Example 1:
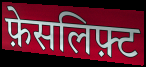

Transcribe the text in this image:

फ़ेसलिफ़्ट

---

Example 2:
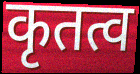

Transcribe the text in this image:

कृतत्व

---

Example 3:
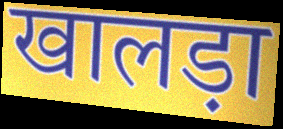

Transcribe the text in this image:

खालड़ा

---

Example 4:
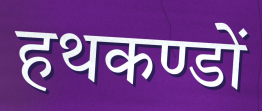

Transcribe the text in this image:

हथकण्डों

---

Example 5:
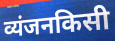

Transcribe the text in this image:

व्यंजनकिसी